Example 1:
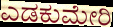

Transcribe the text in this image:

ಎಡಕುಮೇರಿ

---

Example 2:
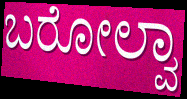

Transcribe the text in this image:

ಬರೋಲ್ವಾ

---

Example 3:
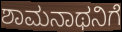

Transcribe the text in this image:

ಶಾಮನಾಥನಿಗೆ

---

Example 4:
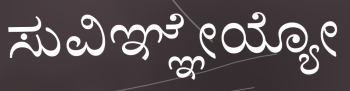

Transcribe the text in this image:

ಸುವಿಞ್ಞೇಯ್ಯೋ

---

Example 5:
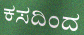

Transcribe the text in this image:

ಕಸದಿಂದ